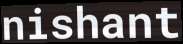
nishant